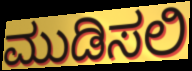
ಮುಡಿಸಲಿ